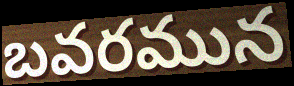
బవరమున